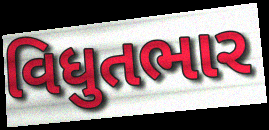
વિધુતભાર